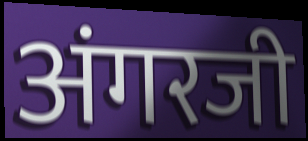
अंगरजी